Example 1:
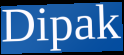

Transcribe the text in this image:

Dipak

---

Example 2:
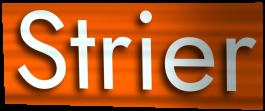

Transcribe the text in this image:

Strier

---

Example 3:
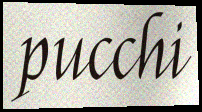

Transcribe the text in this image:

pucchi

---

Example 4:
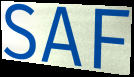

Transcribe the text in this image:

SAF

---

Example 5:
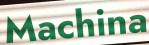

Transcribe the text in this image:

Machina